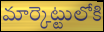
మార్కెట్టులోకి